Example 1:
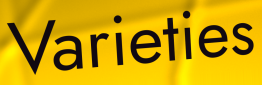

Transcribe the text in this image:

Varieties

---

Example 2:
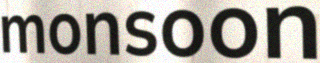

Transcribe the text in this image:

monsoon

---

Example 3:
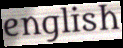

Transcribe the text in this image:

english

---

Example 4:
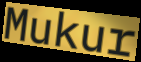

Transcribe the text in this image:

Mukur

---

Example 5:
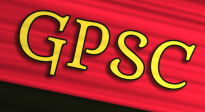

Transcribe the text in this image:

GPSC